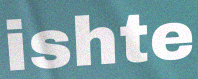
ishte